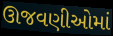
ઊજવણીઓમાં